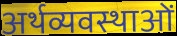
अर्थव्यवस्थाओं